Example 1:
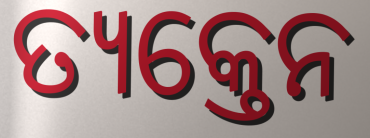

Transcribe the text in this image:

ତ୍ୟକ୍ତେନ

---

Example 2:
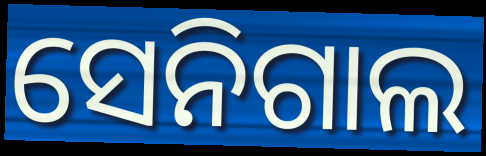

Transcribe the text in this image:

ସେନିଗାଲ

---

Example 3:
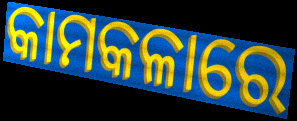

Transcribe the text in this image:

କାମକଳାରେ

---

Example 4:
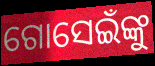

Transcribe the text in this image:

ଗୋସେଇଁଙ୍କୁ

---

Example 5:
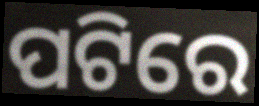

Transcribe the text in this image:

ପଟିରେ